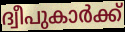
ദ്വീപുകാർക്ക്